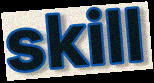
skill